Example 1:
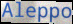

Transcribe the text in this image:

Aleppo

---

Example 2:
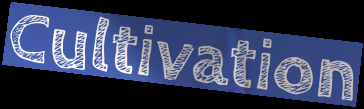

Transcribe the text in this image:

Cultivation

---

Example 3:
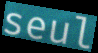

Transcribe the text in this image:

seul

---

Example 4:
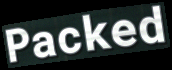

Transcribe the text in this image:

Packed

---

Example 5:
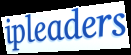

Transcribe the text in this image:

ipleaders